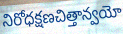
నిరోధక్షణచిత్తాన్వయో